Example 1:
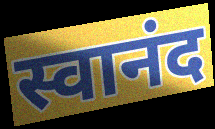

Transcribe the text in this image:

स्वानंद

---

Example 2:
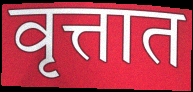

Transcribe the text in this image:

वृत्तात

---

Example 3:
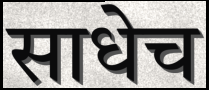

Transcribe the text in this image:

साधेच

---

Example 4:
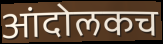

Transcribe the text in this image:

आंदोलकच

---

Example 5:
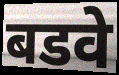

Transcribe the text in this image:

बडवे